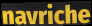
navriche